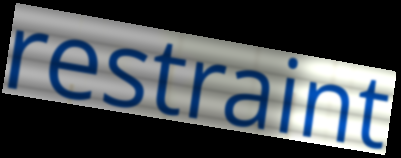
restraint